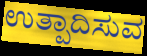
ಉತ್ಪಾದಿಸುವ